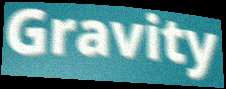
Gravity